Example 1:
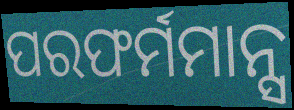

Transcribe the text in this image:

ପରଫର୍ମମାନ୍ସ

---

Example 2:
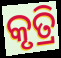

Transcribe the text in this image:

କୃତ୍ରି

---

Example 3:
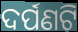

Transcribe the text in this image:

ଦର୍ପଣଟି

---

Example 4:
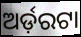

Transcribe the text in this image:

ଅର୍ଡ଼ରଟା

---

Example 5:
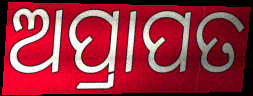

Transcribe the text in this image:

ଅପ୍ରାପତ